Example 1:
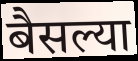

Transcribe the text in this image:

बैसल्या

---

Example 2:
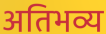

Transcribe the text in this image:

अतिभव्य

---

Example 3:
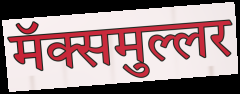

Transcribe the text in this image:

मॅक्समुल्लर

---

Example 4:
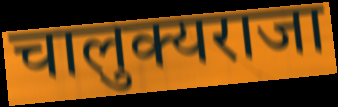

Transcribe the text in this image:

चालुक्यराजा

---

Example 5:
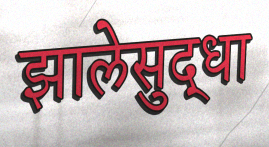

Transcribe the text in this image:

झालेसुद्धा